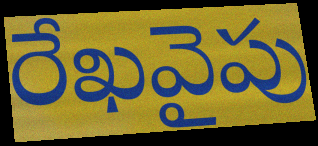
రేఖవైపు